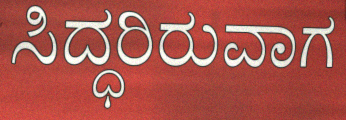
ಸಿದ್ಧರಿರುವಾಗ